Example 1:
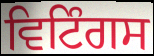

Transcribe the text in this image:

ਵਿਟਿੰਗਸ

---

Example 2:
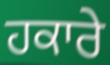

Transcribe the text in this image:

ਹਕਾਰੇ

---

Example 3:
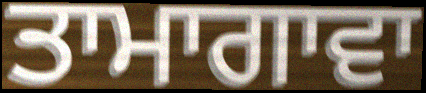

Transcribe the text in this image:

ਤਾਮਾਗਾਵਾ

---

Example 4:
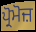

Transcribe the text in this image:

ਪ੍ਰੋਮੋਜ਼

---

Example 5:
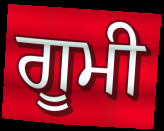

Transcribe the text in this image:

ਗੂਮੀ